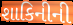
શાકિનીની